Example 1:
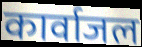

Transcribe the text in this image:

कार्वाजल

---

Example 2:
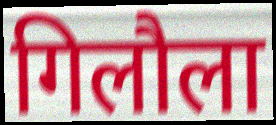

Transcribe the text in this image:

गिलौला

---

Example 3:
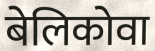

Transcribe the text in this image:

बेलिकोवा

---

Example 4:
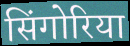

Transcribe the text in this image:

सिंगोरिया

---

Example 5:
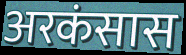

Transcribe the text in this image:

अरकंसास